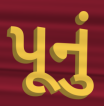
પૂનું